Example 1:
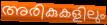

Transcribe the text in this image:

അരികുകളിലും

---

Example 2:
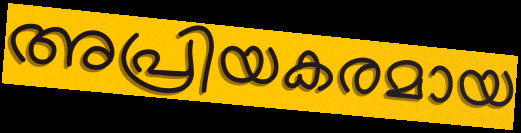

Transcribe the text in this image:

അപ്രിയകരമായ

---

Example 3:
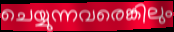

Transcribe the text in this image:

ചെയ്യുന്നവരെങ്കിലും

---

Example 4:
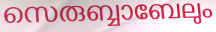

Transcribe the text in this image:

സെരുബ്ബാബേലും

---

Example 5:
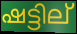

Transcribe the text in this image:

ഷട്ടില്